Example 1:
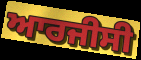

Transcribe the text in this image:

ਆਰਜੀਸੀ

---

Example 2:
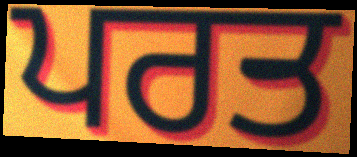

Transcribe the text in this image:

ਪਰਤ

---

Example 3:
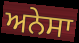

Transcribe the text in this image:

ਅਨੇਸਾ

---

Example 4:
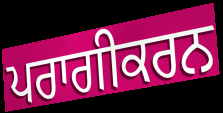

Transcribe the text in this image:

ਪਰਾਗੀਕਰਨ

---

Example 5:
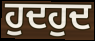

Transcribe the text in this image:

ਹੁਦਹੁਦ